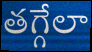
తగ్గేలా